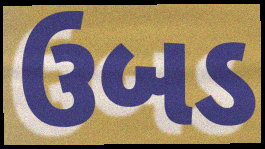
ઉબડ